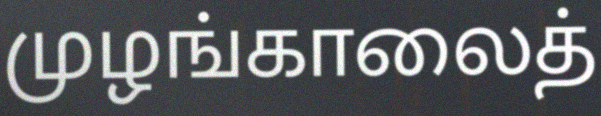
முழங்காலைத்